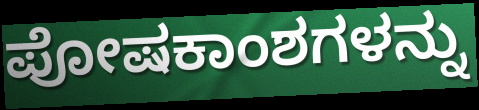
ಪೋಷಕಾಂಶಗಳನ್ನು